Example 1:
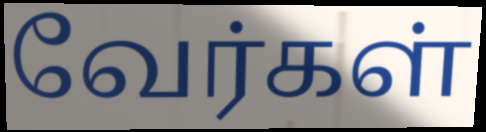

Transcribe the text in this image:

வேர்கள்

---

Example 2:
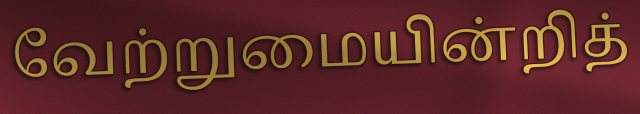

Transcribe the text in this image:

வேற்றுமையின்றித்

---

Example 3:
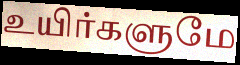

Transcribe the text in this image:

உயிர்களுமே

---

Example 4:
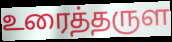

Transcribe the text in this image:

உரைத்தருள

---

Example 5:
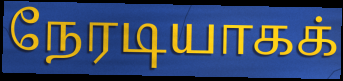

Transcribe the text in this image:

நேரடியாகக்